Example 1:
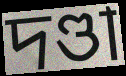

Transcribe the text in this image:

দণ্ডা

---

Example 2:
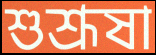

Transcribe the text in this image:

শুশ্রূষা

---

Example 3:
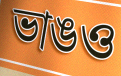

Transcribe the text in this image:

ভাঙও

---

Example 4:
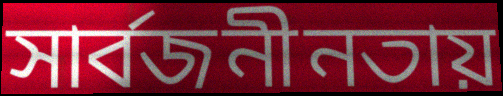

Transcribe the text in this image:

সার্বজনীনতায়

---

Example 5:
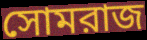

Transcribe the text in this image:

সোমরাজ